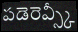
పడెరెవ్స్కీ